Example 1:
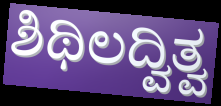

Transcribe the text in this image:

ಶಿಥಿಲದ್ವಿತ್ವ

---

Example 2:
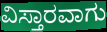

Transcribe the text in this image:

ವಿಸ್ತಾರವಾಗು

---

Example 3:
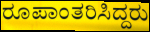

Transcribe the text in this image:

ರೂಪಾಂತರಿಸಿದ್ದರು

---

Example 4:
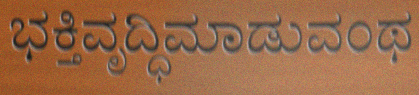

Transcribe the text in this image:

ಭಕ್ತಿವೃದ್ಧಿಮಾಡುವಂಥ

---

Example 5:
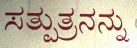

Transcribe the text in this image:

ಸತ್ಪುತ್ರನನ್ನು